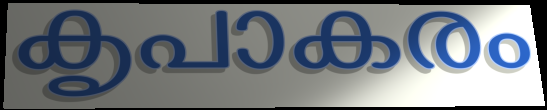
കൃപാകരം